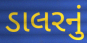
ડાલરનું